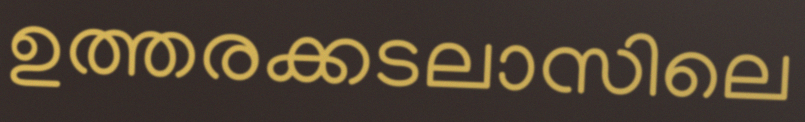
ഉത്തരക്കടലാസിലെ